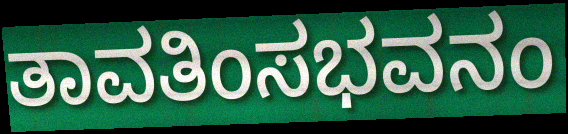
ತಾವತಿಂಸಭವನಂ